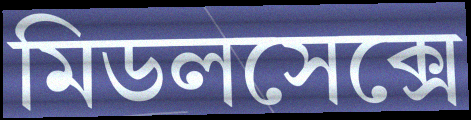
মিডলসেক্সে